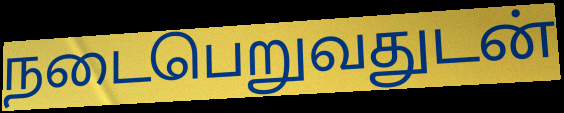
நடைபெறுவதுடன்